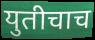
युतीचाच